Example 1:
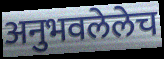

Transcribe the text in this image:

अनुभवलेलेच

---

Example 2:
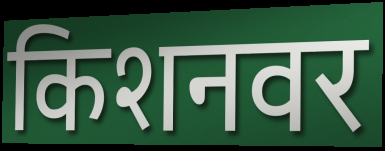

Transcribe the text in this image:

किशनवर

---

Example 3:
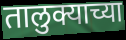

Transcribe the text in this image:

तालुक्याच्या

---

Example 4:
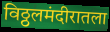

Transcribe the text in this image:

विठ्ठलमंदीरातला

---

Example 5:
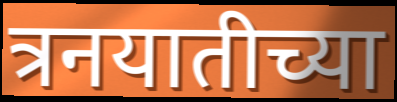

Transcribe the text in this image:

त्रनयातीच्या